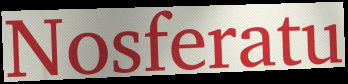
Nosferatu